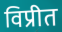
विप्रीत